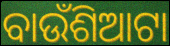
ବାଉଁଶିଆଟା